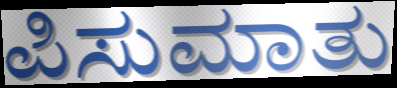
ಪಿಸುಮಾತು